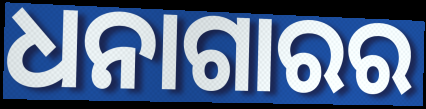
ଧନାଗାରର